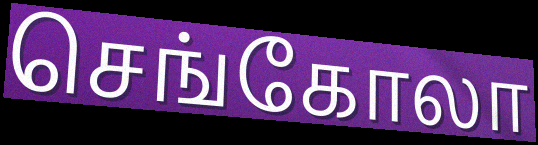
செங்கோலா